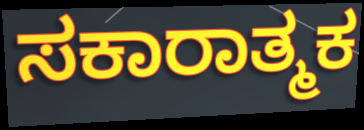
ಸಕಾರಾತ್ಮಕ